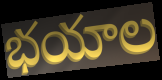
భయాల